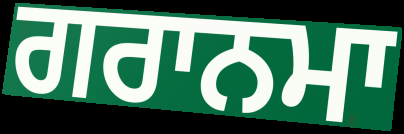
ਗਰਾਨਮਾ